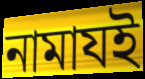
নামাযই